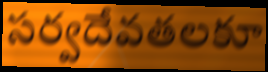
సర్వదేవతలకూ